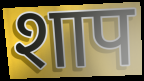
शाप